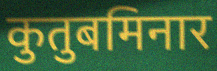
कुतुबमिनार